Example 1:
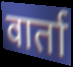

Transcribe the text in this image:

वार्ता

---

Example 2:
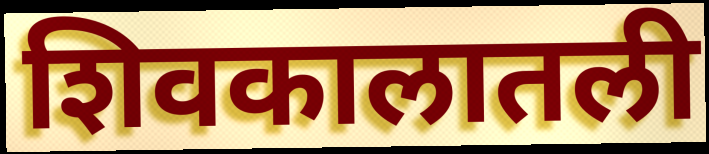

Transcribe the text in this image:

शिवकालातली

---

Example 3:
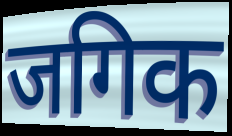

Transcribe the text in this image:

जगिक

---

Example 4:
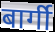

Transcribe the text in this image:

बार्गी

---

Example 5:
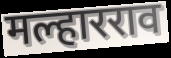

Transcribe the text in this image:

मल्हारराव